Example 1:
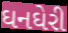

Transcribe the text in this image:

ઘનઘેરી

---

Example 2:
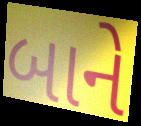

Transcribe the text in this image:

બાને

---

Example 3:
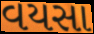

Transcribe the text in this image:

વયસા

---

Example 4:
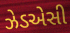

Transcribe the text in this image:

ઝેડએસી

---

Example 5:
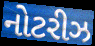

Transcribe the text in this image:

નોટરીઝ